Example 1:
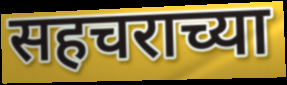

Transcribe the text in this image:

सहचराच्या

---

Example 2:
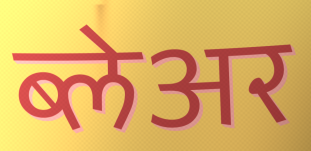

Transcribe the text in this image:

ब्लेअर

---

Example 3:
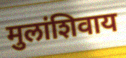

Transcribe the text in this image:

मुलांशिवाय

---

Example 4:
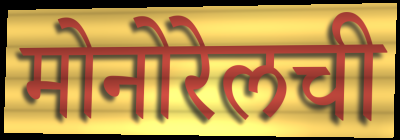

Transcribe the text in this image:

मोनोरेलची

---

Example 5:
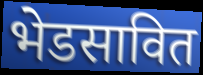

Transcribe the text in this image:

भेडसावित